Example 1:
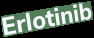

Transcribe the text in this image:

Erlotinib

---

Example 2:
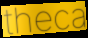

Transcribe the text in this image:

theca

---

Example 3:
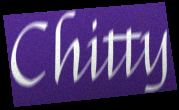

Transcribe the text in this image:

Chitty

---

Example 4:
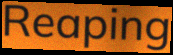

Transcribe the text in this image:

Reaping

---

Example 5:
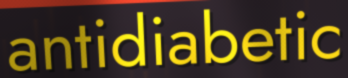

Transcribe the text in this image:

antidiabetic